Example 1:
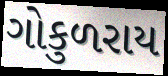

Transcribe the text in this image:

ગોકુળરાય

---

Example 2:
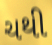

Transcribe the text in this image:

ચથી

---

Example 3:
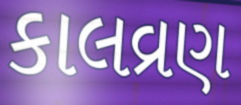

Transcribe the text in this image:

કાલવ્રણ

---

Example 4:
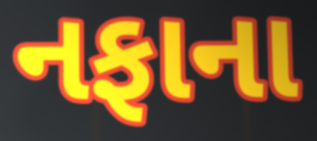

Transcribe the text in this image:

નફાના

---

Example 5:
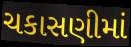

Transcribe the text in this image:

ચકાસણીમાં